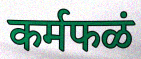
कर्मफळं